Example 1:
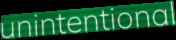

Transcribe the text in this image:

unintentional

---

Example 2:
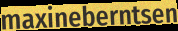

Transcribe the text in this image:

maxineberntsen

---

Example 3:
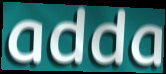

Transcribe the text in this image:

adda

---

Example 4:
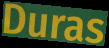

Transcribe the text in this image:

Duras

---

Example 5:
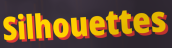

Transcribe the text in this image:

Silhouettes